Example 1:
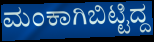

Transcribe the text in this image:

ಮಂಕಾಗಿಬಿಟ್ಟಿದ್ದ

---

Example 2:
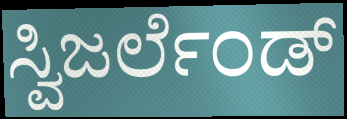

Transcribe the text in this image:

ಸ್ವಿಜರ್ಲೆಂಡ್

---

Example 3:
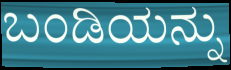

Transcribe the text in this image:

ಬಂಡಿಯನ್ನು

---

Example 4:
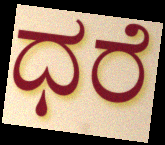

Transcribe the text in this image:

ಧರೆ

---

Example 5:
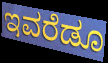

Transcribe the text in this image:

ಇವರೆಡೂ